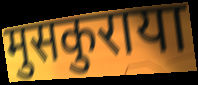
मुसकुराया